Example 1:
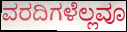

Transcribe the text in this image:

ವರದಿಗಳೆಲ್ಲವೂ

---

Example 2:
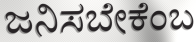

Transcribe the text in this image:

ಜನಿಸಬೇಕೆಂಬ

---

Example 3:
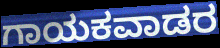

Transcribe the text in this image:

ಗಾಯಕವಾಡರ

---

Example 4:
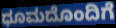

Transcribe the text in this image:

ಧೂಮದೊಂದಿಗೆ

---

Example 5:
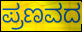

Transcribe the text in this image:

ಪ್ರಣವದ